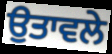
ਉਤਾਵਲੇ